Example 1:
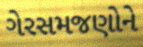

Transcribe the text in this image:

ગેરસમજણોને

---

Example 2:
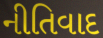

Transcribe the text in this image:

નીતિવાદ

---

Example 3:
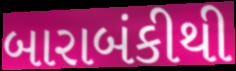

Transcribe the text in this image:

બારાબંકીથી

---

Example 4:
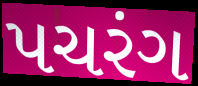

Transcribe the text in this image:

પચરંગ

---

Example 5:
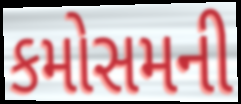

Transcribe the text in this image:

કમોસમની